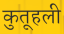
कुतूहली